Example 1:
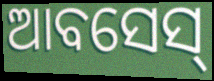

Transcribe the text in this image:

ଆବସେସ୍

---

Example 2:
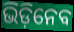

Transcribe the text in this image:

ଭିଡ଼ିନେବ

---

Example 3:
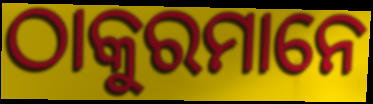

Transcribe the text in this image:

ଠାକୁରମାନେ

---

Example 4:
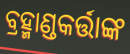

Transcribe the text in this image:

ବ୍ରହ୍ମାଣ୍ଡକର୍ତ୍ତାଙ୍କ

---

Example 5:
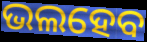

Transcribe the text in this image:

ଭଲହେବ